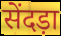
सेंदड़ा